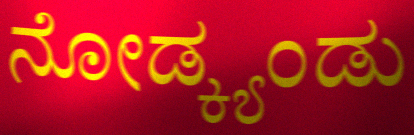
ನೋಡ್ಕ್ಯಂಡು